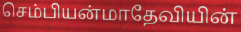
செம்பியன்மாதேவியின்